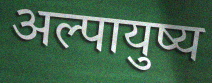
अल्पायुष्य